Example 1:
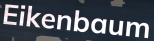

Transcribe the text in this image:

Eikenbaum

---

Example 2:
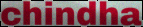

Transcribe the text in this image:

chindha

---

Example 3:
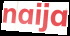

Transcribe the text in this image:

naija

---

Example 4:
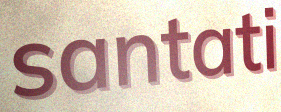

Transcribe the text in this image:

santati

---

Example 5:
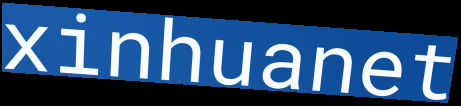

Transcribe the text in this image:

xinhuanet